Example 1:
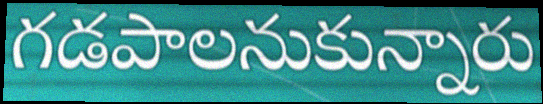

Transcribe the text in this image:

గడపాలనుకున్నారు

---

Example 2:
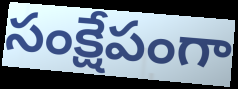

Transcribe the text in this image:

సంక్షేపంగా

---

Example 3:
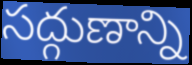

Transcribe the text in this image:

సద్గుణాన్ని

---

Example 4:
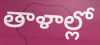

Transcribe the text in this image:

తాళాల్లో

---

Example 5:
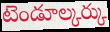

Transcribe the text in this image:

టెండూల్కర్కు